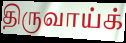
திருவாய்க்